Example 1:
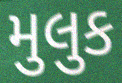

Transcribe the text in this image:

મુલુક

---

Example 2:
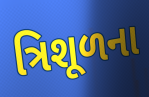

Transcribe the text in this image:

ત્રિશૂળના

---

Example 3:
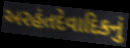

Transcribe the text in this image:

અરહંતદેવાદિકનું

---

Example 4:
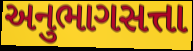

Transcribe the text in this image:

અનુભાગસત્તા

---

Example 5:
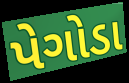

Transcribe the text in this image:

પેગોડા